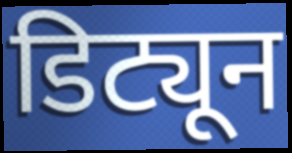
डिट्यून